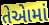
તેએામાં